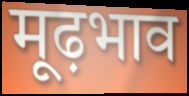
मूढ़भाव